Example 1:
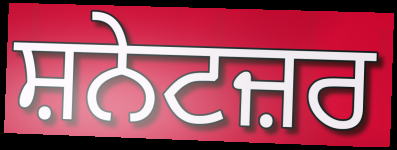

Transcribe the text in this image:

ਸ਼ਨੇਟਜ਼ਰ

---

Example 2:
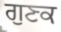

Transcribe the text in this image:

ਗੁਣਕ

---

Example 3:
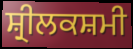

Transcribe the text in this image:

ਸ਼੍ਰੀਲਕਸ਼ਮੀ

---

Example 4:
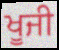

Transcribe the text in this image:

ਖੂਜੀ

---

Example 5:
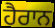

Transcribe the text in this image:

ਹੈਰਾਨ